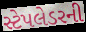
સ્ટેપલેડરની